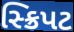
સ્ક્રિપટ